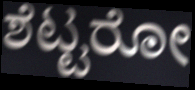
ಶೆಟ್ಟರೋ